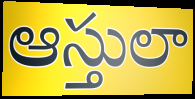
ఆస్తులా